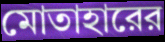
মোতাহারের